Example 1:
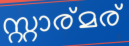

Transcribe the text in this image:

സ്റ്റാര്മര്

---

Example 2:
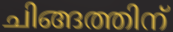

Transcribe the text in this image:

ചിങ്ങത്തിന്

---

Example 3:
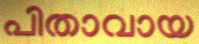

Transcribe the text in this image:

പിതാവായ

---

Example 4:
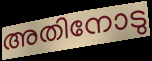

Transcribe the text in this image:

അതിനോടു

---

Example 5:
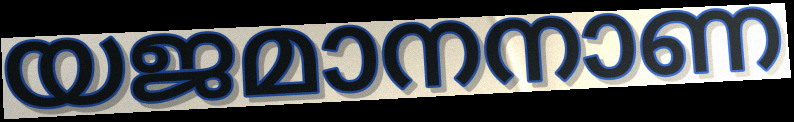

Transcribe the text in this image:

യജമാനനാണ